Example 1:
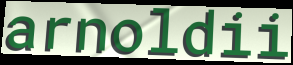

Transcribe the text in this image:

arnoldii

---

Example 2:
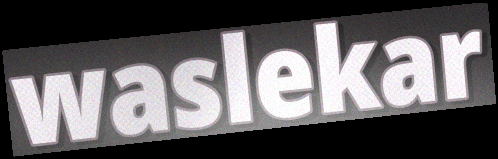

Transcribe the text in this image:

waslekar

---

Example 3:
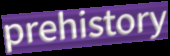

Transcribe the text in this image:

prehistory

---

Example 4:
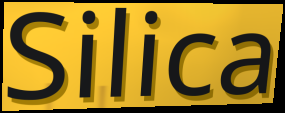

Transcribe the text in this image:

Silica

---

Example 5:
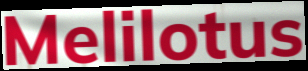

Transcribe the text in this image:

Melilotus